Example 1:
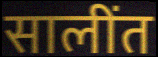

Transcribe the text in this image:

सालींत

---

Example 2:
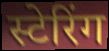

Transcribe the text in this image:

स्टेरिंग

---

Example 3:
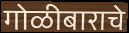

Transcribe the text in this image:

गोळीबाराचे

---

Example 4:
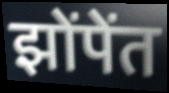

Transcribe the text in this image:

झोंपेंत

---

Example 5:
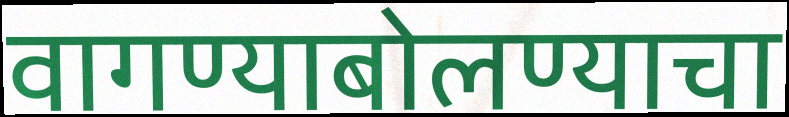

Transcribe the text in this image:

वागण्याबोलण्याचा